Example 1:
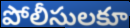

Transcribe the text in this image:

పోలీసులకూ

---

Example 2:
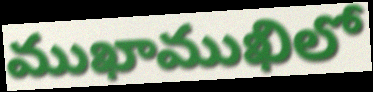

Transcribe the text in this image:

ముఖాముఖిలో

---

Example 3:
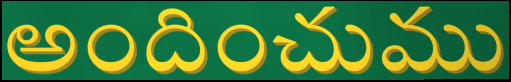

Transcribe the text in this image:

అందించుము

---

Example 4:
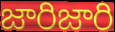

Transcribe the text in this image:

జారిజారి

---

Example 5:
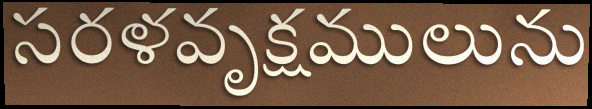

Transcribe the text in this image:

సరళవృక్షములును